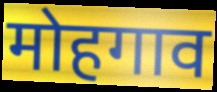
मोहगाव